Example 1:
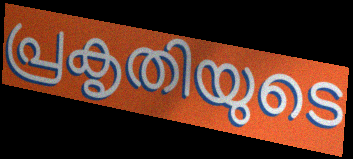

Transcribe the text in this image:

പ്രകൃതിയുടെ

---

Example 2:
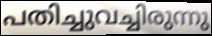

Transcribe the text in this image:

പതിച്ചുവച്ചിരുന്നു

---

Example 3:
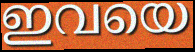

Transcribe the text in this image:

ഇവയെ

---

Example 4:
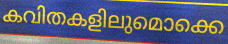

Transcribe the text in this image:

കവിതകളിലുമൊക്കെ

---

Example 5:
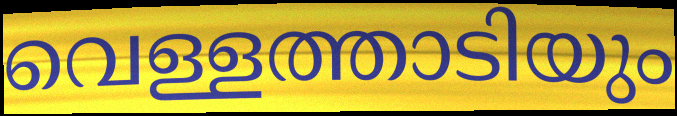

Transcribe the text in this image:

വെള്ളത്താടിയും